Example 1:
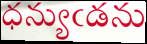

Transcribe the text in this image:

ధన్యుఁడను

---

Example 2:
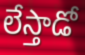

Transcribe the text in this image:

లేస్తాడో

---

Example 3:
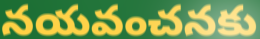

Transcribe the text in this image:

నయవంచనకు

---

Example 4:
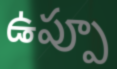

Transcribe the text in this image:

ఉప్పూ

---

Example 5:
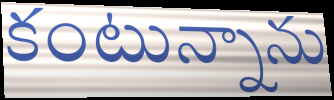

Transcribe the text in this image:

కంటున్నాను